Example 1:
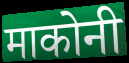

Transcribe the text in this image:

माकोनी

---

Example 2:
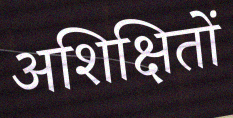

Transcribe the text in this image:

अशिक्षितों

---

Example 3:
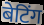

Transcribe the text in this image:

बेटिंग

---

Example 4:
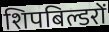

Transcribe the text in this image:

शिपबिल्डरों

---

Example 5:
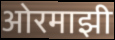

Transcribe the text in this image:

ओरमाझी